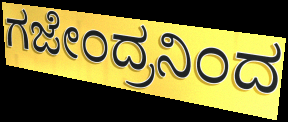
ಗಜೇಂದ್ರನಿಂದ